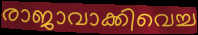
രാജാവാക്കിവെച്ച